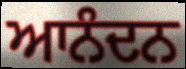
ਆਨੰਦਨ